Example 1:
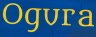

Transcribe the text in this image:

Ogura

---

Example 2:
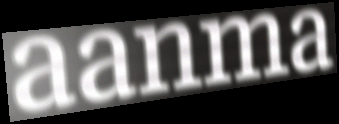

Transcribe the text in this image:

aanma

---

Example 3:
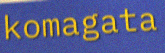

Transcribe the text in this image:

komagata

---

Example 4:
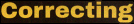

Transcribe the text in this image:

Correcting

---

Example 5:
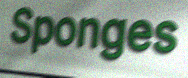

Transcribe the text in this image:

Sponges